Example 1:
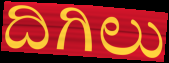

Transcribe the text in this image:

ದಿಗಿಲು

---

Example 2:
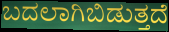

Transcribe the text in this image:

ಬದಲಾಗಿಬಿಡುತ್ತದೆ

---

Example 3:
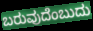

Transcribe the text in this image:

ಬರುವುದೆಂಬುದು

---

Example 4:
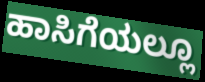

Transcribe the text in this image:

ಹಾಸಿಗೆಯಲ್ಲೂ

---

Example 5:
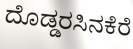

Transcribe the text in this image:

ದೊಡ್ಡರಸಿನಕೆರೆ